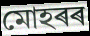
মোহৰৰ